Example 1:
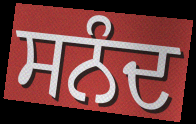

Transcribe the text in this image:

ਸਨੰਦ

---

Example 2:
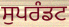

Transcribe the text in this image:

ਸੁਪਰੰਡਟ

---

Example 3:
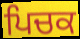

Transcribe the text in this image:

ਪਿਚਕ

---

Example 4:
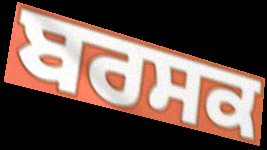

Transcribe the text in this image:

ਬਰਸਕ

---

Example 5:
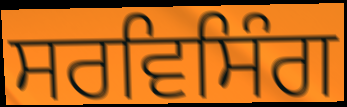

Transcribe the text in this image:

ਸਰਵਿਸਿੰਗ